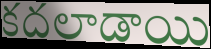
కదలాడాయి